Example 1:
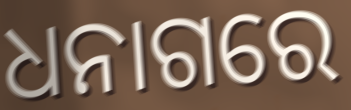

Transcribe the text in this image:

ଧନାଗରେ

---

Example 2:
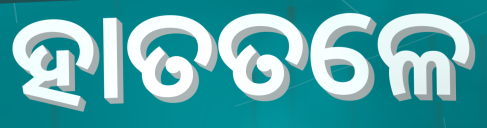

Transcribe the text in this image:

ହାତତଳେ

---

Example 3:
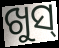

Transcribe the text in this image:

ଖୁସ୍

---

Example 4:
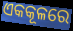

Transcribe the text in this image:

ଏକକୂଳରେ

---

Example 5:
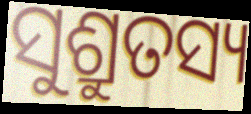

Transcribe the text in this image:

ସୁଶ୍ରୁତସ୍ୟ